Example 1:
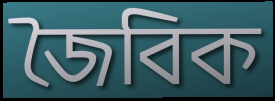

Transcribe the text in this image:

জৈবিক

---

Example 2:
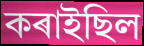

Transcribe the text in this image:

কৰাইছিল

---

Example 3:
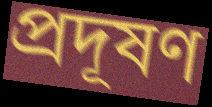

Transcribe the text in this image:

প্ৰদূষণ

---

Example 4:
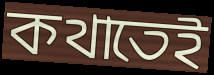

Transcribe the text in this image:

কথাতেই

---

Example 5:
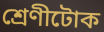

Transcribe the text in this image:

শ্ৰেণীটোক